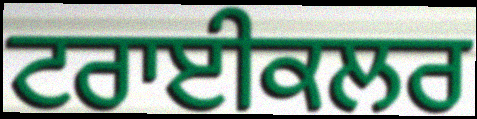
ਟਰਾਈਕਲਰ